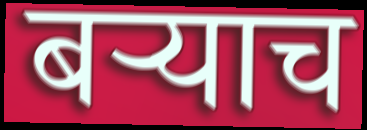
बऱ्याच